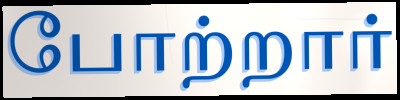
போற்றார்